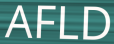
AFLD